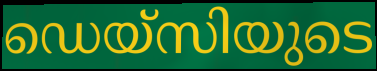
ഡെയ്സിയുടെ